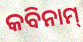
କବିନାମ୍